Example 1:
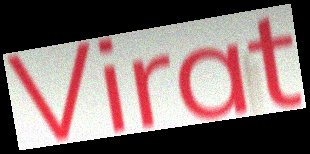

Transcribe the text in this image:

Virat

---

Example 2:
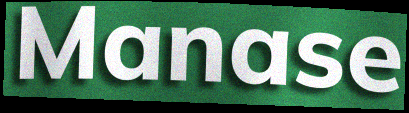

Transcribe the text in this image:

Manase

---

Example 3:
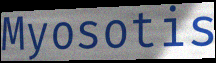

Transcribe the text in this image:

Myosotis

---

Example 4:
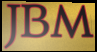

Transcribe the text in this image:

JBM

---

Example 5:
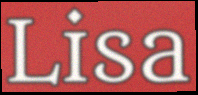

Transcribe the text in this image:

Lisa